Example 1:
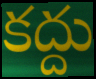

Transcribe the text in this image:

కద్దు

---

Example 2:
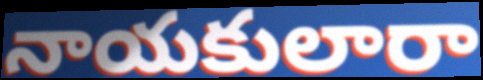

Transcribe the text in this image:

నాయకులారా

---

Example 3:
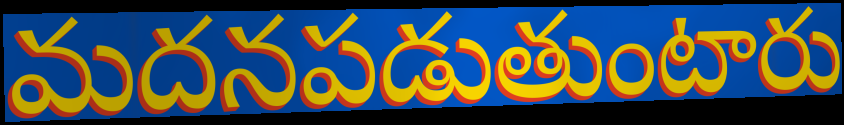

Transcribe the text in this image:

మదనపడుతుంటారు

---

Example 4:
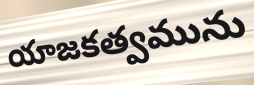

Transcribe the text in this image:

యాజకత్వమును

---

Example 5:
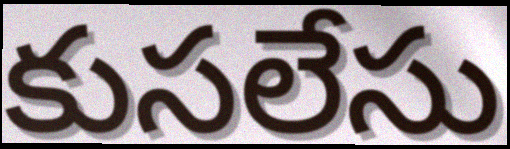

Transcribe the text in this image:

కుసలేసు